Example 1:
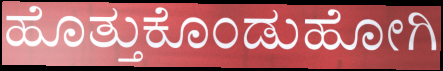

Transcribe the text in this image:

ಹೊತ್ತುಕೊಂಡುಹೋಗಿ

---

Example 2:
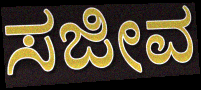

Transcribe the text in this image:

ಸಜೀವ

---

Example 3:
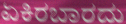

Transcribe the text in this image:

ಏಕಿರಬಾರದು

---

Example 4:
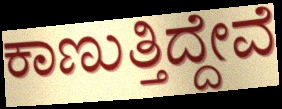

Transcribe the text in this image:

ಕಾಣುತ್ತಿದ್ದೇವೆ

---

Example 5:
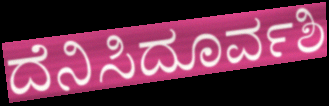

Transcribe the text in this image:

ದೆನಿಸಿದೂರ್ವಶಿ